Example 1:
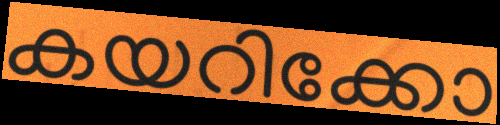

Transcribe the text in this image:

കയറിക്കോ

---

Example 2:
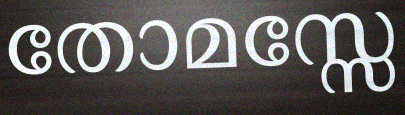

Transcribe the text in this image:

തോമസ്സേ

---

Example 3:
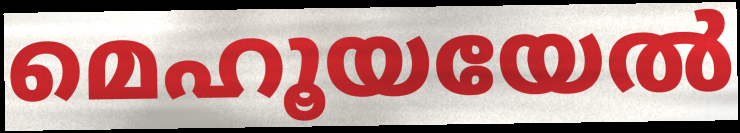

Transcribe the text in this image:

മെഹൂയയേൽ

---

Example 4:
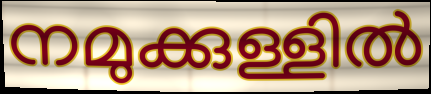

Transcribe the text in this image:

നമുക്കുള്ളിൽ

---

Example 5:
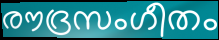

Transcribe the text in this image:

രൗദ്രസംഗീതം